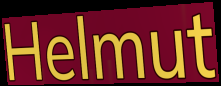
Helmut